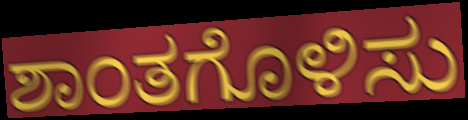
ಶಾಂತಗೊಳಿಸು